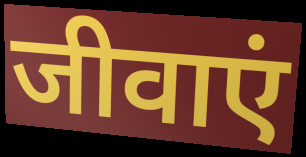
जीवाएं